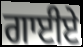
ਗਾਈਏ